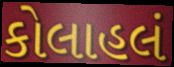
કોલાહલં